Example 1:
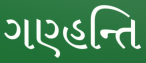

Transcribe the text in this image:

ગણ્હન્તિ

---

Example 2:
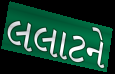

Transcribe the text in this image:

લલાટને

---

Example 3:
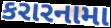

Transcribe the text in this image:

કરારનામા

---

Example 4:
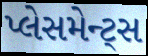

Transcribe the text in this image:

પ્લેસમેન્ટ્સ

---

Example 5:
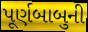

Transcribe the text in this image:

પૂર્ણબાબુની